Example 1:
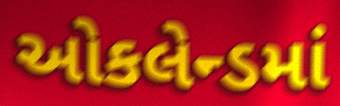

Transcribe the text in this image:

ઓકલેન્ડમાં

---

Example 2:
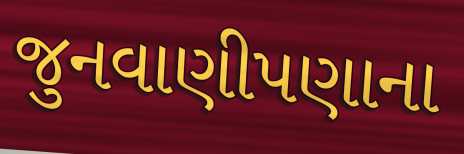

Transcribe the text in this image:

જુનવાણીપણાના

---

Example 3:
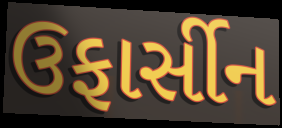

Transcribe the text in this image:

ઉફાર્સીન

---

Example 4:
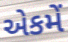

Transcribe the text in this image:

એકમેં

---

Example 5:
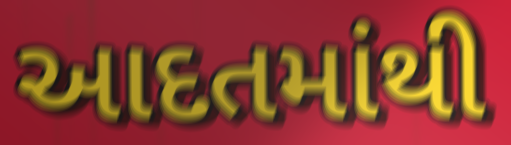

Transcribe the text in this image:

આદતમાંથી